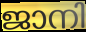
ജാനി